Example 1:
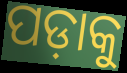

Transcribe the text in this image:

ପଡ଼ାକୁ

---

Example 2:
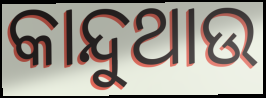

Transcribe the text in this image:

କାନ୍ଦୁଥାଉ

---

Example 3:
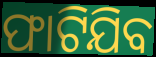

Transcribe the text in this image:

ଫାଟିଯିବ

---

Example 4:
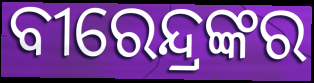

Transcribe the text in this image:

ବୀରେନ୍ଦ୍ରଙ୍କର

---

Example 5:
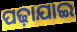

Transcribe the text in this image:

ପଢ଼ାଯାଇ